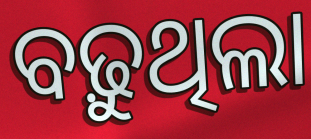
ବଢ଼ୁଥିଲା